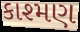
કાશ્મણ